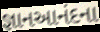
જ્ઞાનઆનંદના